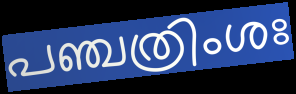
പഞ്ചത്രിംശഃ